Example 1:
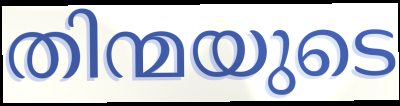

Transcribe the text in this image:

തിന്മയുടെ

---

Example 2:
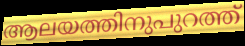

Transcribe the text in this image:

ആലയത്തിനുപുറത്ത്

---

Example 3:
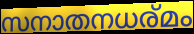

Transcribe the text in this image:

സനാതനധര്മം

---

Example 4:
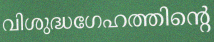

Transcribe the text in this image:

വിശുദ്ധഗേഹത്തിന്റെ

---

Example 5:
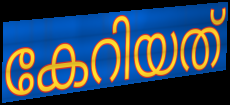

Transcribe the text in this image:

കേറിയത്